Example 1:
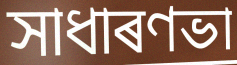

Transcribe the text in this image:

সাধাৰণভা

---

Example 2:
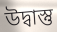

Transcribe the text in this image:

উদ্বাস্তু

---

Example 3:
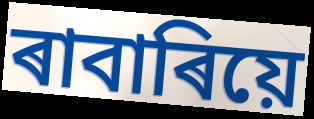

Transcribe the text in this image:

ৰাবাৰিয়ে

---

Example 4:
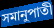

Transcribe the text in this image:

সমানুপাতী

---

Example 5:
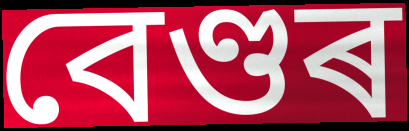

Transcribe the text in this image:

বেণ্ডৰ